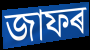
জাফৰ